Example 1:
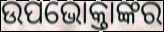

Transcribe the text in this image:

ଉପଭୋକ୍ତାଙ୍କର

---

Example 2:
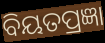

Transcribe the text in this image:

ବିୟତପ୍ରଜ୍ଞା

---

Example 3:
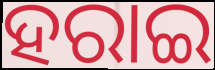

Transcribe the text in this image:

ହରାଇ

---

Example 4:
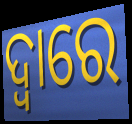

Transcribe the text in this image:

ଦ୍ବାରେ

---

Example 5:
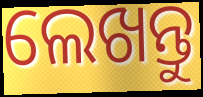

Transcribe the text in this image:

ଲେଖନ୍ତୁ